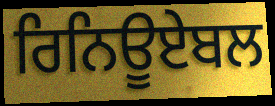
ਰਿਨਿਊਏਬਲ